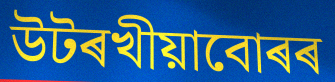
উটৰখীয়াবোৰৰ